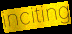
inciting